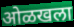
ओळखला